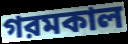
গরমকাল